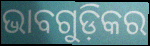
ଭାବଗୁଡ଼ିକର